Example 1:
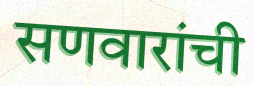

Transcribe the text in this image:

सणवारांची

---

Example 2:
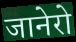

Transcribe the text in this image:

जानेरो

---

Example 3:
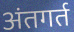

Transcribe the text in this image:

अंतगर्त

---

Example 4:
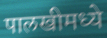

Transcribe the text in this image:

पालखीमध्ये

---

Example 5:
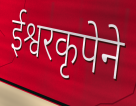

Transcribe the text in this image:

ईश्वरकृपेने